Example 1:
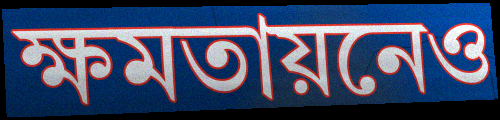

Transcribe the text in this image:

ক্ষমতায়নেও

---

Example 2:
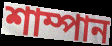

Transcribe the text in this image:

শাম্পান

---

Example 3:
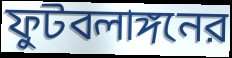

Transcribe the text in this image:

ফুটবলাঙ্গনের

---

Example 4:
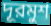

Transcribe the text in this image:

দূরমুশ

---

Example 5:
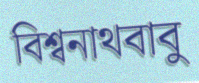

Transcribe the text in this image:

বিশ্বনাথবাবু